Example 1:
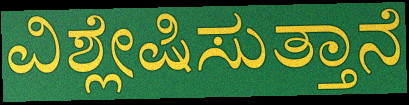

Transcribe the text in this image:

ವಿಶ್ಲೇಷಿಸುತ್ತಾನೆ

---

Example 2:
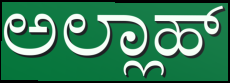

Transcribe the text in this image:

ಅಲ್ಲಾಹ್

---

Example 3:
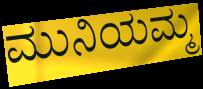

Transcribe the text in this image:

ಮುನಿಯಮ್ಮ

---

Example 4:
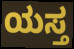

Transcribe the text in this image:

ಯಸ್ತ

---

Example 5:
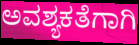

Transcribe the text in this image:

ಅವಶ್ಯಕತೆಗಾಗಿ